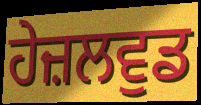
ਹੇਜ਼ਲਵੁਡ